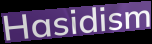
Hasidism